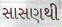
સાસણથી